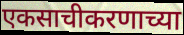
एकसाचीकरणाच्या